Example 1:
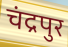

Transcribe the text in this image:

चंद्रपुर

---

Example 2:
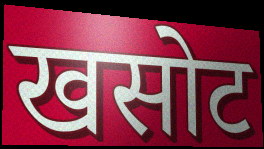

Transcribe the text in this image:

खसोट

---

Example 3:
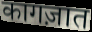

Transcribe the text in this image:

कागज़ात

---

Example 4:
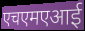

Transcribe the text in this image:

एचएमएआई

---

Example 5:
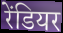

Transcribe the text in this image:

रेंडियर